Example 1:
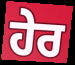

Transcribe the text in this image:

ਹੇਰ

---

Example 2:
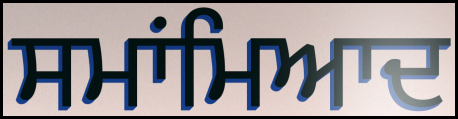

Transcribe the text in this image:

ਸਮਾਂਮਿਆਦ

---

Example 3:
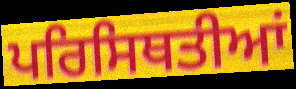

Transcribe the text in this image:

ਪਰਿਸਿਥਤੀਆਂ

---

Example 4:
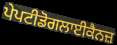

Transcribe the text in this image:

ਪੇਪਟੀਡੋਗਲਾਈਕੈਨਜ਼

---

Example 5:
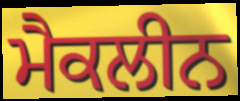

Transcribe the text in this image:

ਮੈਕਲੀਨ